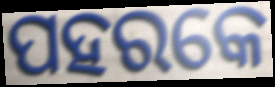
ପହରକେ